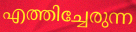
എത്തിച്ചേരുന്ന